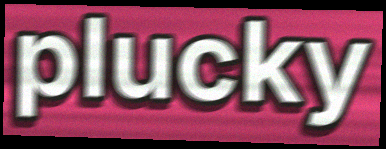
plucky